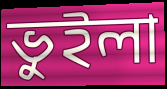
ভুইলা